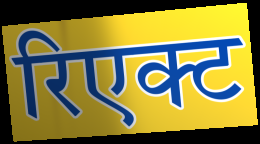
रिएक्ट